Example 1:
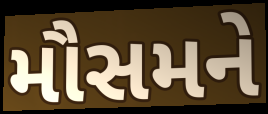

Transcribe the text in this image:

મૌસમને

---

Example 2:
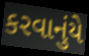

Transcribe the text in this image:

કરવાનુંયે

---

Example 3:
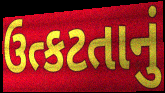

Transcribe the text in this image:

ઉત્કટતાનું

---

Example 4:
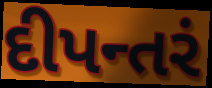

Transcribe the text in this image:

દીપન્તરં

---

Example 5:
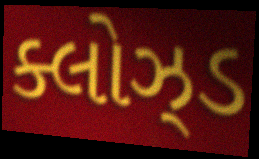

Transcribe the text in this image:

ક્લોઝ્ડ